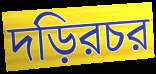
দড়িরচর